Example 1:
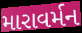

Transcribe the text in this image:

મારાવર્મન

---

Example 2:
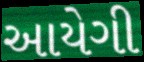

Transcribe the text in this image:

આયેગી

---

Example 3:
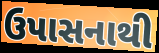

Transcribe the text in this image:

ઉપાસનાથી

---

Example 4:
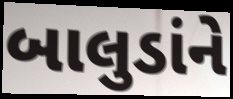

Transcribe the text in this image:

બાલુડાંને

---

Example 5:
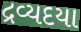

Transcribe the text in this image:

દ્રવ્યદયા